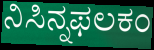
ನಿಸಿನ್ನಫಲಕಂ